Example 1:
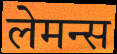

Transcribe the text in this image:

लेमन्स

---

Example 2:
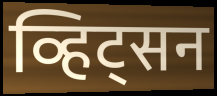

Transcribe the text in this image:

व्हिट्सन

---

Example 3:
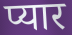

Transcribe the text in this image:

प्यार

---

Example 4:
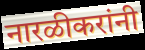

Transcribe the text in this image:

नारळीकरांनी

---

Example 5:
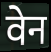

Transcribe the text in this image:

वेन